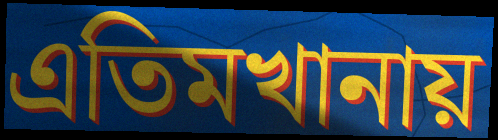
এতিমখানায়